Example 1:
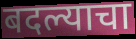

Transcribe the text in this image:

बदल्याचा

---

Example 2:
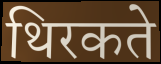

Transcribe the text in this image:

थिरकते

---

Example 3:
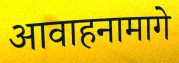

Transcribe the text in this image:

आवाहनामागे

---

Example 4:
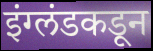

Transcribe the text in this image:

इंग्लंडकडून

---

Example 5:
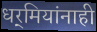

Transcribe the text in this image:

धर्मियांनाही